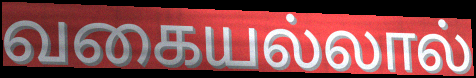
வகையல்லால்